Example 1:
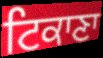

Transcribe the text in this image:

ਟਿਕਾਣਾ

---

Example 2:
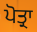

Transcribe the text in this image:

ਪੋਤ੍ਰਾ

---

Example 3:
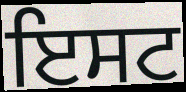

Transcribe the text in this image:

ਇਸਟ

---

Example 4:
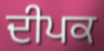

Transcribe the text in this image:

ਦੀਪਕ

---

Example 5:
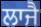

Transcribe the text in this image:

ਲਾਜੈ